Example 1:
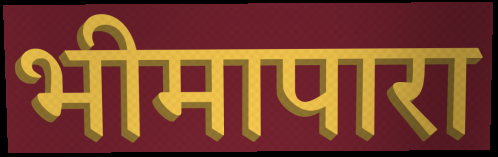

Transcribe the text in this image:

भीमापारा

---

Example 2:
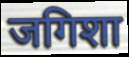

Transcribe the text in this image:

जगिशा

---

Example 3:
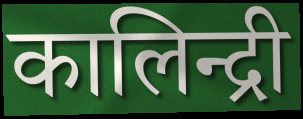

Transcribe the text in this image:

कालिन्द्री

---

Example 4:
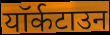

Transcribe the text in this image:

यॉर्कटाउन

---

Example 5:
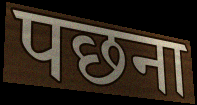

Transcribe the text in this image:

पछना